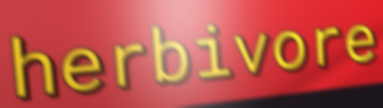
herbivore